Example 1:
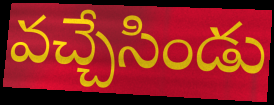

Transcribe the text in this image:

వచ్చేసిండు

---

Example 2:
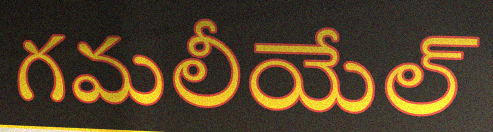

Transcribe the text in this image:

గమలీయేల్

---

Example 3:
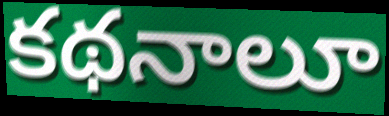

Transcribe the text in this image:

కథనాలూ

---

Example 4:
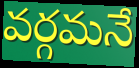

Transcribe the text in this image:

వర్గమనే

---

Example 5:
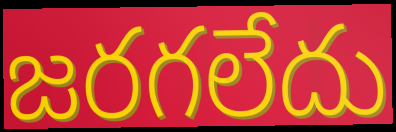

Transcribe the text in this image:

జరగలేదు